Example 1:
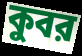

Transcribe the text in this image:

কুবর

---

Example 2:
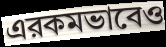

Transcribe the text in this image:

এরকমভাবেও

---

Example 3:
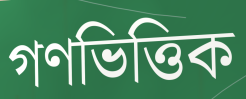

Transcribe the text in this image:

গণভিত্তিক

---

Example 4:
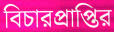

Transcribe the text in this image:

বিচারপ্রাপ্তির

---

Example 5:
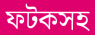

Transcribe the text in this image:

ফটকসহ